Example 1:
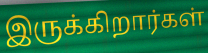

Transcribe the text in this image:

இருக்கிறார்கள்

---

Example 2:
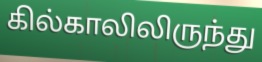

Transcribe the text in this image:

கில்காலிலிருந்து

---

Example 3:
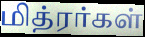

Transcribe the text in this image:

மித்ரர்கள்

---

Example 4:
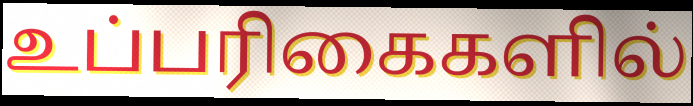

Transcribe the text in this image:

உப்பரிகைகளில்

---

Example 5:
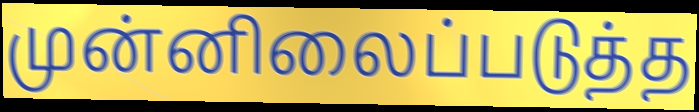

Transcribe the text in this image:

முன்னிலைப்படுத்த